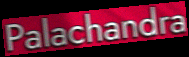
Palachandra